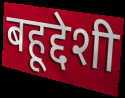
बहूद्देशी